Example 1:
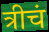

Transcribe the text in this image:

त्रीचं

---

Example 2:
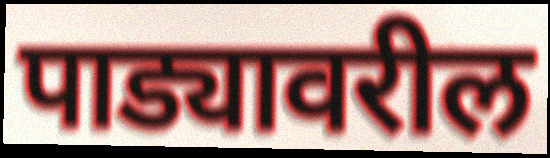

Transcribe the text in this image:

पाड्यावरील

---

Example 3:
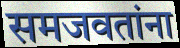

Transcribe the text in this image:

समजवतांना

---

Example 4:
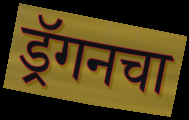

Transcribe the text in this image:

ड्रॅगनचा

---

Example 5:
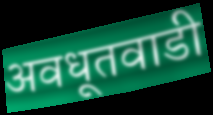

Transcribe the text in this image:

अवधूतवाडी